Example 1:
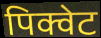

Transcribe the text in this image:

पिक्वेट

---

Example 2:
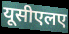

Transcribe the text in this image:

यूसीएलए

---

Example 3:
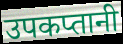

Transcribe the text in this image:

उपकप्तानी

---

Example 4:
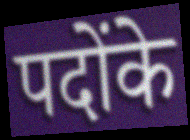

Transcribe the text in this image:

पदोंके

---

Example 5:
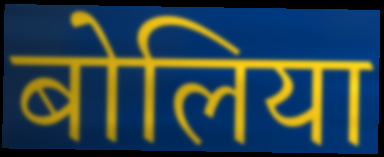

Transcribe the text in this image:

बोलिया